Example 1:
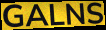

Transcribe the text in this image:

GALNS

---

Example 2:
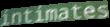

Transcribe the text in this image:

intimates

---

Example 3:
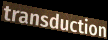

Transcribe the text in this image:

transduction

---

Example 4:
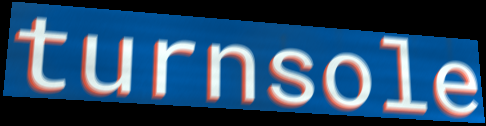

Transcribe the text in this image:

turnsole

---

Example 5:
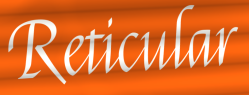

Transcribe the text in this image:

Reticular